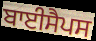
ਬਾਈਸੈਪਸ